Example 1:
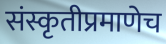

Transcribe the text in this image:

संस्कृतीप्रमाणेच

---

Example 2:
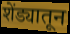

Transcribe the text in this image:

शेंड्यातून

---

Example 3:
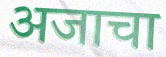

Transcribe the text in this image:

अजाचा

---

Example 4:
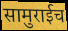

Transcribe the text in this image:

सामुराईच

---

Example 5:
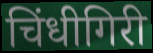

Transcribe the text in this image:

चिंधीगिरी